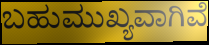
ಬಹುಮುಖ್ಯವಾಗಿವೆ